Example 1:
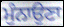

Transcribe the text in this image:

ਮੁੰਨਾਉਣਾ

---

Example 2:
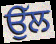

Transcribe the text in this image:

ਉੱਲ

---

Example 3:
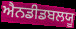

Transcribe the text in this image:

ਐਨਡੀਡਬਲਯੂ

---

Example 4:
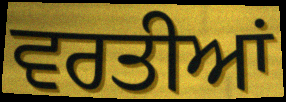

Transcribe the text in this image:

ਵਰਤੀਆਂ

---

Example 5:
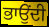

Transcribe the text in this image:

ਭਾਉਂਦੀ